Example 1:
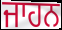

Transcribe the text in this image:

ਜਾਹਨ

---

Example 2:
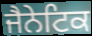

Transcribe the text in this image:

ਜੈਨੇਟਿਕ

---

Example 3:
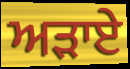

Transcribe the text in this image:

ਅੜਾਏ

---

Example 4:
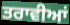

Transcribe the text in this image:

ਤਰਾਵੀਆਂ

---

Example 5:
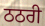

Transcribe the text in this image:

ਠਠਰੀ